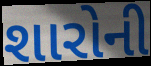
શારોની